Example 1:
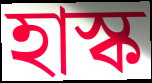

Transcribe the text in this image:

হাস্ক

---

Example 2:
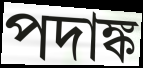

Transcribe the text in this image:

পদাঙ্ক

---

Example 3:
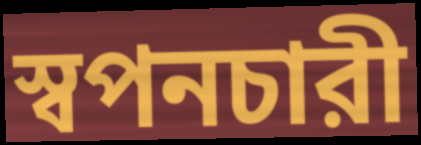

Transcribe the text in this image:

স্বপনচারী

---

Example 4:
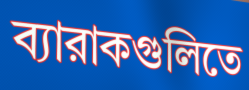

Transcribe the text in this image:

ব্যারাকগুলিতে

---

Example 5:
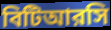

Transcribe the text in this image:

বিটিআরসি